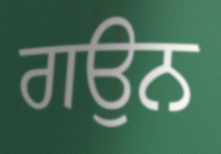
ਗਉਨ